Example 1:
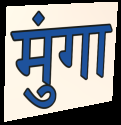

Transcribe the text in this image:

मुंगा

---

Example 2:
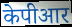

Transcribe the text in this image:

केपीआर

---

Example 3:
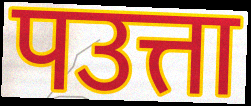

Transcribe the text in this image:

पउत्ता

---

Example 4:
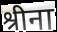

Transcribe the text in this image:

श्रीना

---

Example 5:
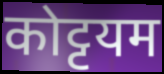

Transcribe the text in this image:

कोट्टयम